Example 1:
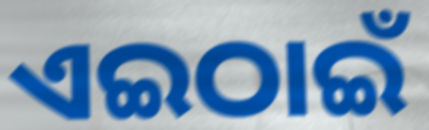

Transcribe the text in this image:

ଏଇଠାଇଁ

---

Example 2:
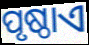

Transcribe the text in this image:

ପୃଷ୍ଠାଏ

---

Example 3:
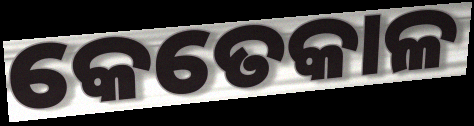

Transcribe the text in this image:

କେତେକାଳ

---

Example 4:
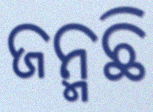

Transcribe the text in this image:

ଜନ୍ମଛି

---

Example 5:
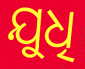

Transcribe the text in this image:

ଯୁଧି